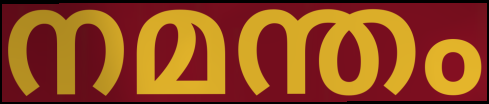
നമന്തം